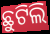
ଛୁଟିଲି